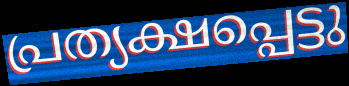
പ്രത്യക്ഷപ്പെട്ടു